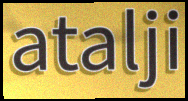
atalji